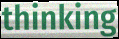
thinking